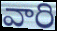
వారి